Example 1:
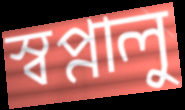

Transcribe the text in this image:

স্বপ্নালু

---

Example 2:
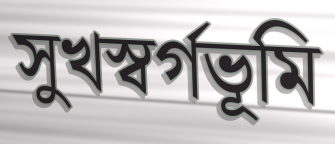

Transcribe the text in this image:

সুখস্বর্গভূমি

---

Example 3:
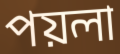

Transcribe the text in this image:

পয়লা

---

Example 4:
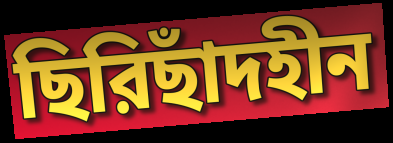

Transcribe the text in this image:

ছিরিছাঁদহীন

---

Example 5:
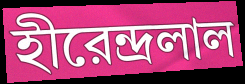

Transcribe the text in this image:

হীরেন্দ্রলাল